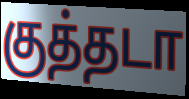
குத்தடா